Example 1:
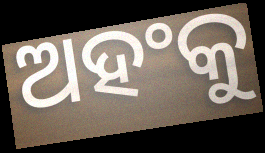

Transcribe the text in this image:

ଅହଂକୁ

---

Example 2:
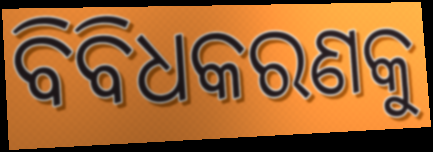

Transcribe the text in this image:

ବିବିଧକରଣକୁ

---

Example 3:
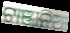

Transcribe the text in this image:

ଟାଞ୍ଜାନିଆ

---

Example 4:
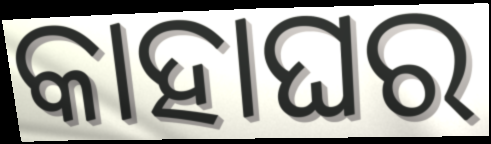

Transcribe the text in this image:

କାହାଘର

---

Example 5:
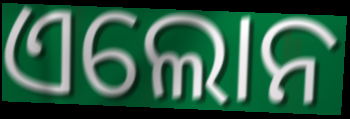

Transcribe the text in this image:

ଏଲୋନ